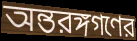
অন্তরঙ্গগণের